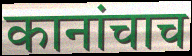
कानांचाच